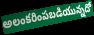
అలంకరింపబడియున్నదో